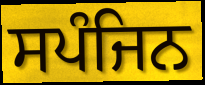
ਸਪੰਜਿਨ